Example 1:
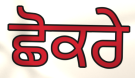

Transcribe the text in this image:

ਛੋਕਰੇ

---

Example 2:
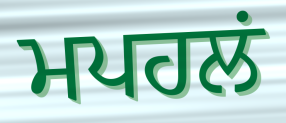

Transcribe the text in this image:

ਮਪਹਲਂ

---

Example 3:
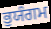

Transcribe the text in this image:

ਭੁਯੰਗਮ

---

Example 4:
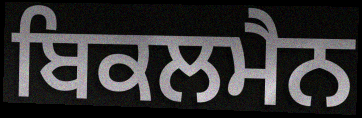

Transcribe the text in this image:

ਬਿਕਲਮੈਨ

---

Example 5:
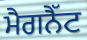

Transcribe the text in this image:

ਮੈਗਨੈੱਟ